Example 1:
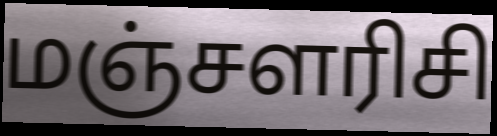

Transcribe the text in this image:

மஞ்சளரிசி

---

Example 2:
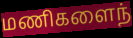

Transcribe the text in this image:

மணிகளைந்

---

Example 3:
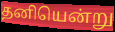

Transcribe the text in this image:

தனியென்று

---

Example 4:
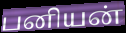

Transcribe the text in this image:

பனியன்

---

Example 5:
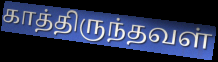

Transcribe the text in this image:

காத்திருந்தவள்